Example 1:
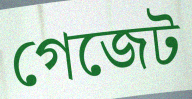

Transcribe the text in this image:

গেজেট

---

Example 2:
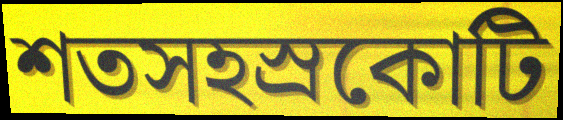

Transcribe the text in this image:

শতসহস্রকোটি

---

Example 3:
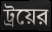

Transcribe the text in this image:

ট্রয়ের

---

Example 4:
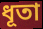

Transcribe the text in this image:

ধূতা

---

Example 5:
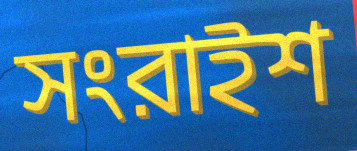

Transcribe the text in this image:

সংরাইশ